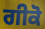
ਗੀਕੋ